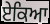
ਏਕਿਆ